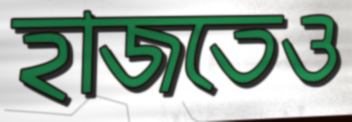
হাজতেও